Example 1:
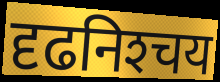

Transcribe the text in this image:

दृढनिश्‍चय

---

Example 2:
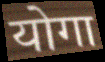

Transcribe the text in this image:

योगा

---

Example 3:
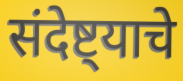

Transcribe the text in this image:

संदेष्ट्याचे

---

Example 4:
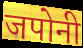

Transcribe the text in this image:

जपोनी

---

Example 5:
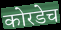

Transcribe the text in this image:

कोरडेच